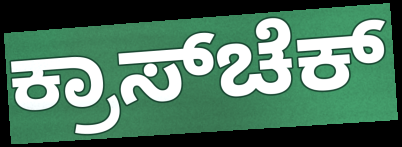
ಕ್ರಾಸ್‌ಚೆಕ್